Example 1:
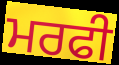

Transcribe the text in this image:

ਮਰਫੀ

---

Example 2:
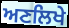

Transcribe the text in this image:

ਅਣਲਿਖੇ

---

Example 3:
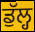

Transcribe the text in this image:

ਡੁੱਲ੍ਹ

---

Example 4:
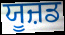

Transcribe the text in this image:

ਯੂਜ਼ਡ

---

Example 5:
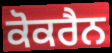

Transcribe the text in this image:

ਕੋਕਰੈਨ